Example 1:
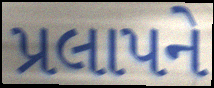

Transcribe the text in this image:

પ્રલાપને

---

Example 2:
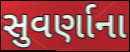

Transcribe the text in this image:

સુવર્ણાના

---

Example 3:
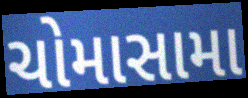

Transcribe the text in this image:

ચોમાસામા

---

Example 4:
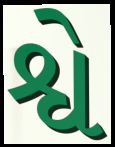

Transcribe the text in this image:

શ્વે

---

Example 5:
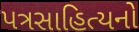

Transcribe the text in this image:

પત્રસાહિત્યનો